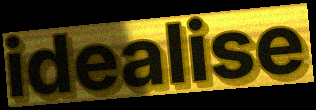
idealise